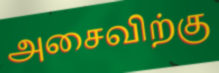
அசைவிற்கு